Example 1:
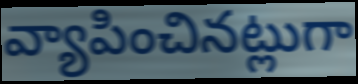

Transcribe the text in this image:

వ్యాపించినట్లుగా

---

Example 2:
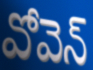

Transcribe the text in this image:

వోవెన్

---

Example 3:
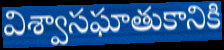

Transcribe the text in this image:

విశ్వాసఘాతుకానికి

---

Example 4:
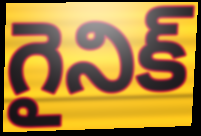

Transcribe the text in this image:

గైనిక్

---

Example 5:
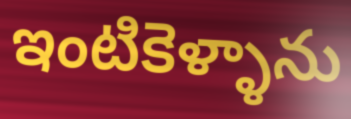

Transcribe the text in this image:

ఇంటికెళ్ళాను